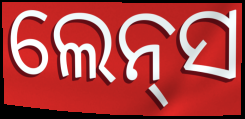
ଲେନ୍‌ସ